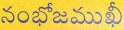
నంభోజముఖీ